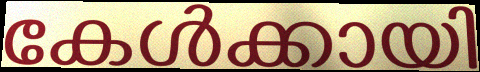
കേൾക്കായി